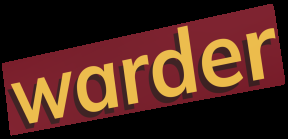
warder